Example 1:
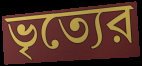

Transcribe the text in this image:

ভৃত্যের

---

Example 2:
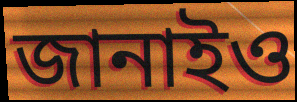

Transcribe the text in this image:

জানাইও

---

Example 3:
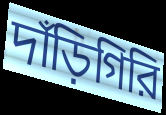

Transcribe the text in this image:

দাঁড়িগিরি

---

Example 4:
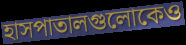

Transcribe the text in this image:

হাসপাতালগুলোকেও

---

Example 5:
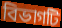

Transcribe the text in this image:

বিভাগটি